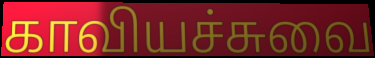
காவியச்சுவை